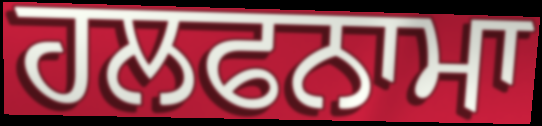
ਹਲਫਨਾਮਾ